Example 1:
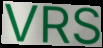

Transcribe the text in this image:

VRS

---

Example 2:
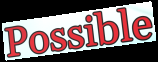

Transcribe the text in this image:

Possible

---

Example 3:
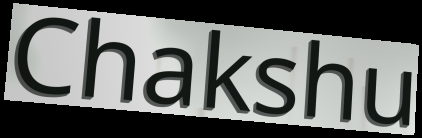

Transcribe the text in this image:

Chakshu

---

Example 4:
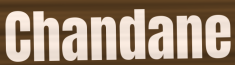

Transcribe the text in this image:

Chandane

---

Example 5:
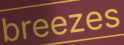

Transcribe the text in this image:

breezes